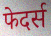
फेदर्स